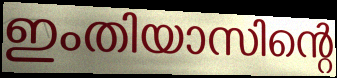
ഇംതിയാസിന്റെ